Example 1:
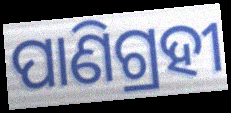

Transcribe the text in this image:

ପାଣିଗ୍ରହୀ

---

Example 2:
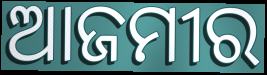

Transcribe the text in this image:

ଆଜମୀର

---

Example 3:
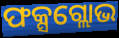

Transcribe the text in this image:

ଫକ୍ସଗ୍ଲୋଭ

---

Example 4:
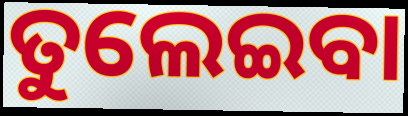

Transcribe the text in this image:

ତୁଲେଇବା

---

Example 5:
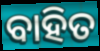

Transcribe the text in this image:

ବାହିତ